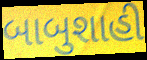
બાબુશાહી